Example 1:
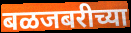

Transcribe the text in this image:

बळजबरीच्या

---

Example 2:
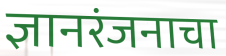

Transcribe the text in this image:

ज्ञानरंजनाचा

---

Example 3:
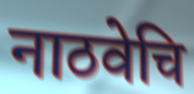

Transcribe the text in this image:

नाठवेचि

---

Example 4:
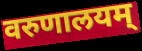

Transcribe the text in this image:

वरुणालयम्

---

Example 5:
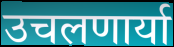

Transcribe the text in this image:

उचलणार्या